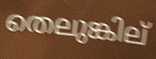
തെലുങ്കില്